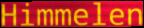
Himmelen